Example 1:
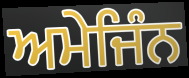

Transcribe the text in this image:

ਅਮੇਜਿੰਨ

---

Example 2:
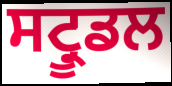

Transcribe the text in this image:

ਸਟ੍ਰੂਡਲ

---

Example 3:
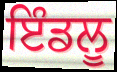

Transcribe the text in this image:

ਇੰਡਲੂ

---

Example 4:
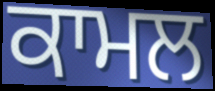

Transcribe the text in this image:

ਕਾਮਲ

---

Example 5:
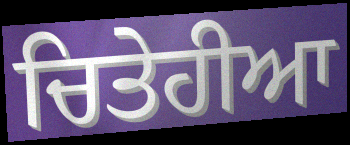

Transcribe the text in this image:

ਚਿਤੇਹੀਆ